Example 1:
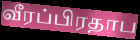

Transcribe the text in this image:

வீரப்பிரதாப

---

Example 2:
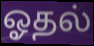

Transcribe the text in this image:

ஓதல்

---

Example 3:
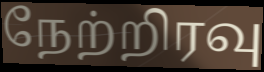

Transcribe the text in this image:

நேற்றிரவு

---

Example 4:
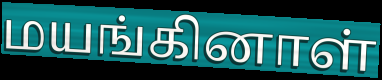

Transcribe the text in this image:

மயங்கினாள்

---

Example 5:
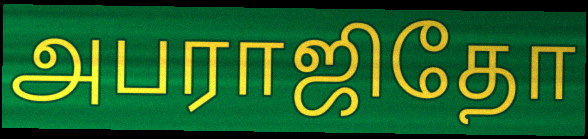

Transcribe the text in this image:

அபராஜிதோ